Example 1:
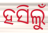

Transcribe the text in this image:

ହସିଲୁଁ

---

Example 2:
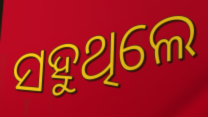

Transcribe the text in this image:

ସହୁଥିଲେ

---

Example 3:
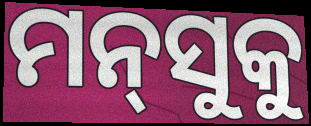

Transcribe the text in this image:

ମନ୍‌ସୁକୁ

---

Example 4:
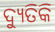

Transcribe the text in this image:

ଦ୍ୟୁତିକି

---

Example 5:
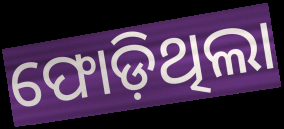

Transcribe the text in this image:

ଫୋଡ଼ିଥିଲା